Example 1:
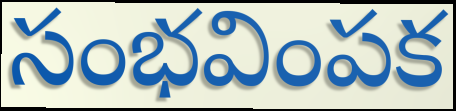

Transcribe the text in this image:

సంభవింపక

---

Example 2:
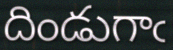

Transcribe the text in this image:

దిండుగాఁ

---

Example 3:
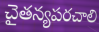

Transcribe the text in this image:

చైతన్యపరచాలి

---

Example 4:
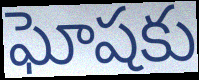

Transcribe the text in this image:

ఘోషకు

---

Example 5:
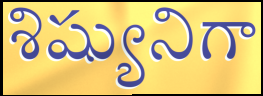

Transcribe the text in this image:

శిష్యునిగా